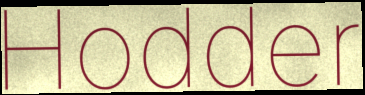
Hodder